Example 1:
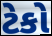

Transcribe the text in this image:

ટેકો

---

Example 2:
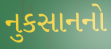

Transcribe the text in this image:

નુકસાનનો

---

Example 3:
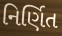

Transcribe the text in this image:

નિર્ણિત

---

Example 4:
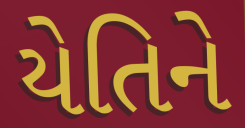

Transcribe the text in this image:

યેતિને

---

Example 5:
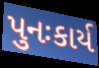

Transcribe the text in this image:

પુનઃકાર્ય